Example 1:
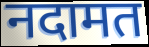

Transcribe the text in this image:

नदामत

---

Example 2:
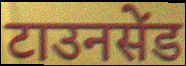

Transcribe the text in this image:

टाउनसेंड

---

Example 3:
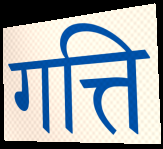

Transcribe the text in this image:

गत्ति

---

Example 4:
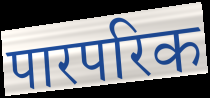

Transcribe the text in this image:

पारपरिक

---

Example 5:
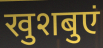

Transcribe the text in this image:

खुशबुएं